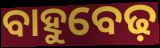
ବାହୁବେଢ଼